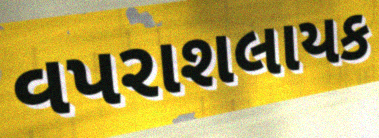
વપરાશલાયક